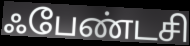
ஃபேண்டசி